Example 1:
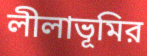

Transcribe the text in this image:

লীলাভূমির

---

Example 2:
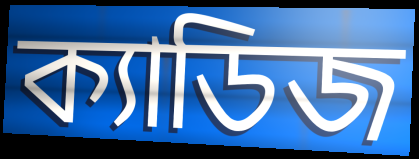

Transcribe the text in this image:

ক্যাডিজ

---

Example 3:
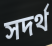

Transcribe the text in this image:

সদর্থ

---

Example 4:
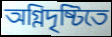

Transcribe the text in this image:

অগ্নিদৃষ্টিতে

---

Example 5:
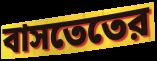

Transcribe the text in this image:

বাসতেতের